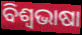
ବିଶ୍ୱଭାଷା